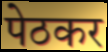
पेठकर